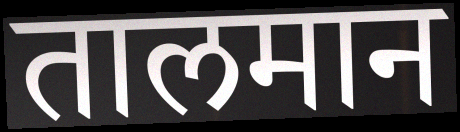
तालमान